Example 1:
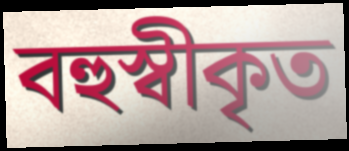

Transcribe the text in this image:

বহুস্বীকৃত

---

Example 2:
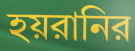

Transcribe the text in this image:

হয়রানির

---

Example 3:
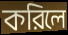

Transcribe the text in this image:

করিলে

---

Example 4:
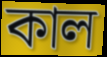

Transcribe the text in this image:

কাল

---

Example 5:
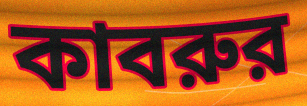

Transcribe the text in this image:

কাবরুর